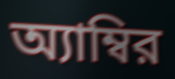
অ্যাম্বির